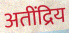
अतींद्रिय